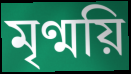
মৃণ্ময়ি